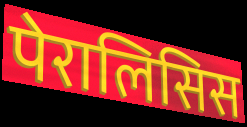
पेरालिसिस